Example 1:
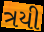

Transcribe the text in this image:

ત્રયી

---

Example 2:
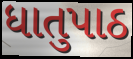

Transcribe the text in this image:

ધાતુપાઠ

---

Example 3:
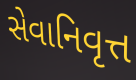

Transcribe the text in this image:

સેવાનિવૃત્ત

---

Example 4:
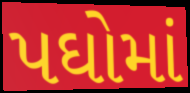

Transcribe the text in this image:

પઘોમાં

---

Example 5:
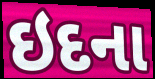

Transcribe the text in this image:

ઇદના